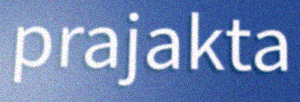
prajakta